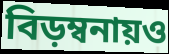
বিড়ম্বনায়ও